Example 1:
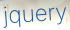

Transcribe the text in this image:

jquery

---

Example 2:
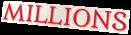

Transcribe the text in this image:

MILLIONS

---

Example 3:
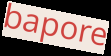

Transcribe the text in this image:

bapore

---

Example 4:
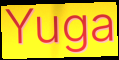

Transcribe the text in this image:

Yuga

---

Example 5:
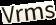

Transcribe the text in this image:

Vrms